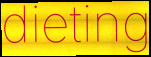
dieting